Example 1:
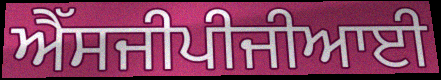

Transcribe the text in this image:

ਐੱਸਜੀਪੀਜੀਆਈ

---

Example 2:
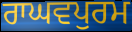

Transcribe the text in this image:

ਰਾਘਵਪੁਰਮ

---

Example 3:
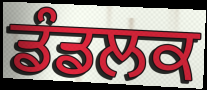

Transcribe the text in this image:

ਡੰਡਲਕ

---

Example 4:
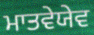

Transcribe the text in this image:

ਮਾਤਵੇਯੇਵ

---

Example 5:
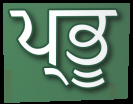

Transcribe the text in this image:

ਪ੍ਭੂ